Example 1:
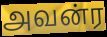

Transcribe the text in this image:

அவன்ர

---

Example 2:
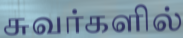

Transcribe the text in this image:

சுவர்களில்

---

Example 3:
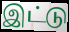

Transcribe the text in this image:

இட்டு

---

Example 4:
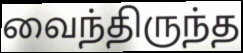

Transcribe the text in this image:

வைந்திருந்த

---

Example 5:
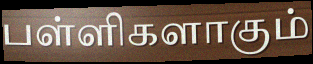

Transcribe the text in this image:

பள்ளிகளாகும்